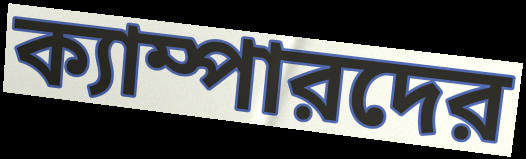
ক্যাম্পারদের